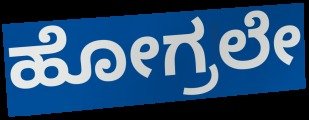
ಹೋಗ್ರಲೇ